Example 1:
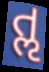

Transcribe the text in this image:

તૢ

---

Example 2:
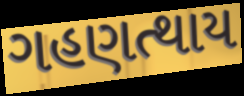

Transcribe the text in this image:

ગહણત્થાય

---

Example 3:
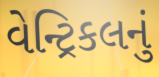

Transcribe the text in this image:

વેન્ટ્રિકલનું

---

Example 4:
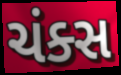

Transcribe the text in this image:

ચંક્સ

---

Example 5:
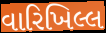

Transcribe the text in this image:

વારિખિલ્લ